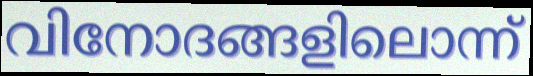
വിനോദങ്ങളിലൊന്ന്